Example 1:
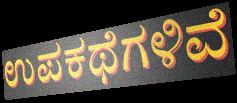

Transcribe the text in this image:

ಉಪಕಥೆಗಳಿವೆ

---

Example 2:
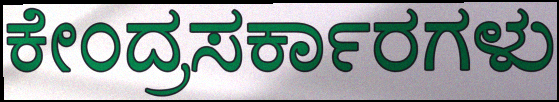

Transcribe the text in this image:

ಕೇಂದ್ರಸರ್ಕಾರಗಳು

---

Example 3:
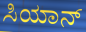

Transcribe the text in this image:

ಸಿಯಾನ್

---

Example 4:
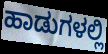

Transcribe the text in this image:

ಹಾಡುಗಳಲ್ಲಿ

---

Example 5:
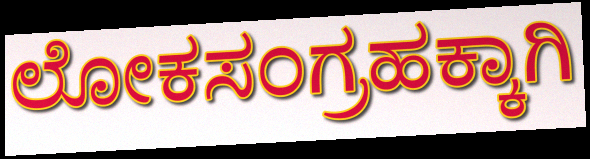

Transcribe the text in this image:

ಲೋಕಸಂಗ್ರಹಕ್ಕಾಗಿ